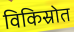
विकिस्रोत